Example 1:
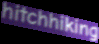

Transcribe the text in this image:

hitchhiking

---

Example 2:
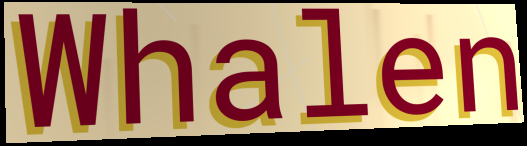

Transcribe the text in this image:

Whalen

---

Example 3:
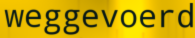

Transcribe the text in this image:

weggevoerd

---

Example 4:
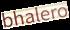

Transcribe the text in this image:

bhalero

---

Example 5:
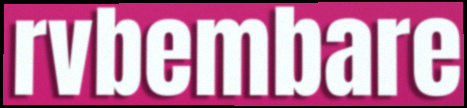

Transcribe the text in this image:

rvbembare